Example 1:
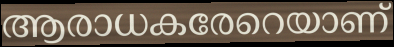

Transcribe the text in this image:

ആരാധകരേറെയാണ്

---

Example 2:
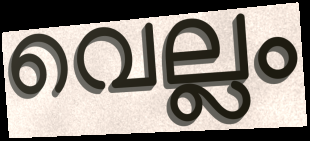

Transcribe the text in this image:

വെല്ലം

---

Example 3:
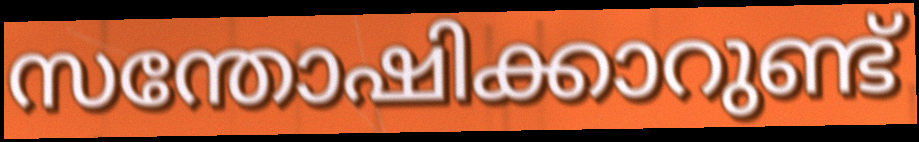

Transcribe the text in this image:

സന്തോഷിക്കാറുണ്ട്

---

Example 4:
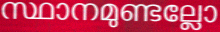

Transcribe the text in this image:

സ്ഥാനമുണ്ടല്ലോ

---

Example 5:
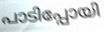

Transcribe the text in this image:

പാടിപ്പോയി